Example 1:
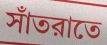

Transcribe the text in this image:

সাঁতরাতে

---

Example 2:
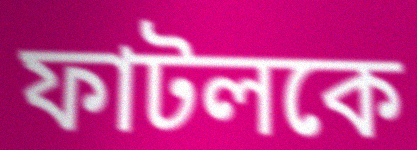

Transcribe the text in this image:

ফাটলকে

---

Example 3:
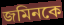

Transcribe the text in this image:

জমিনকে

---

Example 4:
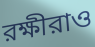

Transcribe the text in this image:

রক্ষীরাও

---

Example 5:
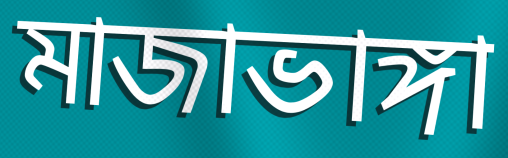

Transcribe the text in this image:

মাজাভাঙ্গা